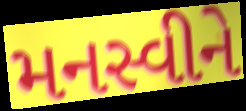
મનસ્વીને